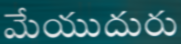
మేయుదురు